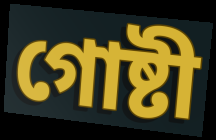
গোষ্টী